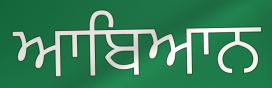
ਆਬਿਆਨ